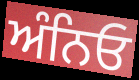
ਅੰਨਿਓ